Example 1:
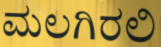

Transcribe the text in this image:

ಮಲಗಿರಲಿ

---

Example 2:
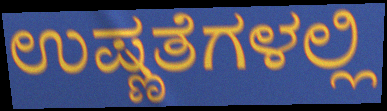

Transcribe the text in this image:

ಉಷ್ಣತೆಗಳಲ್ಲಿ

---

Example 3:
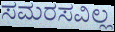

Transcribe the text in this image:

ಸಮರಸವಿಲ್ಲ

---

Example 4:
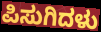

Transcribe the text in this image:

ಪಿಸುಗಿದಳು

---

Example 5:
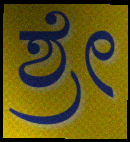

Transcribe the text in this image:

ಶ್ರೇ